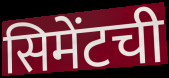
सिमेंटची